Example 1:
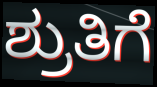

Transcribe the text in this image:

ಶ್ರುತಿಗೆ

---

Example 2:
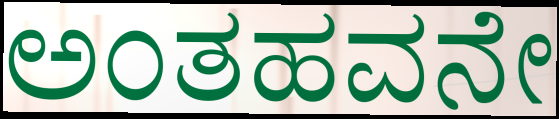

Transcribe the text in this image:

ಅಂತಹವನೇ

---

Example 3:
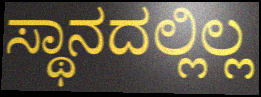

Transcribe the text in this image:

ಸ್ಥಾನದಲ್ಲಿಲ್ಲ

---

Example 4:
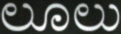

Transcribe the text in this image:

ಲೂಲು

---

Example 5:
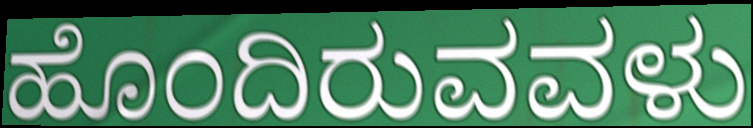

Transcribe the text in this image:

ಹೊಂದಿರುವವಳು